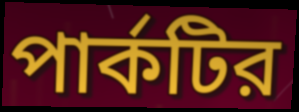
পার্কটির